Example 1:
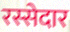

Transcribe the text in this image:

रस्सेदार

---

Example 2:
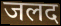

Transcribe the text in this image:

जलद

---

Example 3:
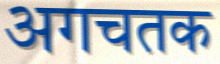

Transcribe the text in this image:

अगचतक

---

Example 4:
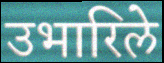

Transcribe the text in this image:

उभारिले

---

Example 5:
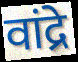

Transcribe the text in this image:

वांद्रे